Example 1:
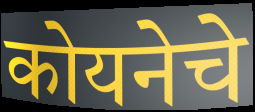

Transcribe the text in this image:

कोयनेचे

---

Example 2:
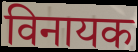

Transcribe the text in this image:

विनायक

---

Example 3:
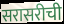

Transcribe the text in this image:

सरासरीची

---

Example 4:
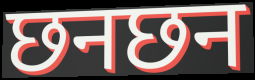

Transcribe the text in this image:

छनछन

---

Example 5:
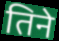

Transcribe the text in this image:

तिने